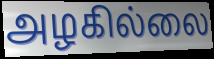
அழகில்லை